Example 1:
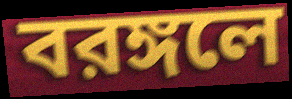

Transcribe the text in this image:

বরঙ্গলে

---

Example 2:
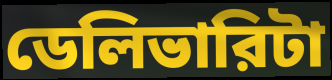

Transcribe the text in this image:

ডেলিভারিটা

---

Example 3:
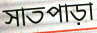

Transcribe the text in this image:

সাতপাড়া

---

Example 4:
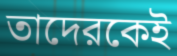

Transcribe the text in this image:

তাদেরকেই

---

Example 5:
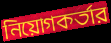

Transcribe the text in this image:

নিয়োগকর্তার